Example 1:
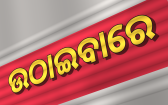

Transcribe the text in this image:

ଉଠାଇବାରେ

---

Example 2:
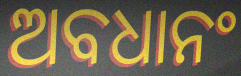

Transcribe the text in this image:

ଅବଧାନଂ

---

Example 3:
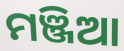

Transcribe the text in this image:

ମଞ୍ଜିଆ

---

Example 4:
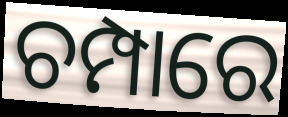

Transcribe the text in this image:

ଚମ୍ପାରେ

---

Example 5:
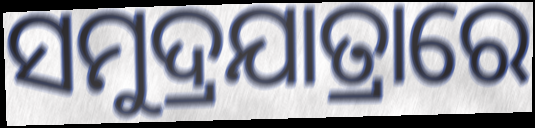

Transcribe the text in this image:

ସମୁଦ୍ରଯାତ୍ରାରେ